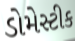
ડોમેસ્ટીક